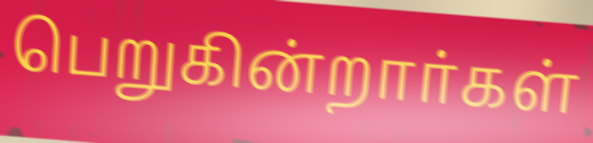
பெறுகின்றார்கள்